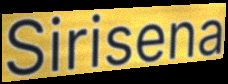
Sirisena